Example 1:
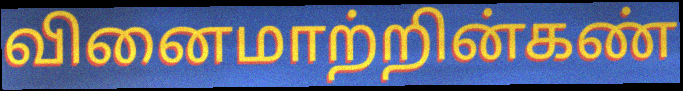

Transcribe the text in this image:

வினைமாற்றின்கண்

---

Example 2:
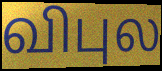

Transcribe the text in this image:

விபுல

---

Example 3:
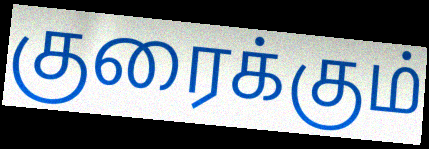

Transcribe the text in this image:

குரைக்கும்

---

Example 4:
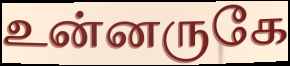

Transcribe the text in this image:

உன்னருகே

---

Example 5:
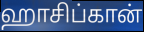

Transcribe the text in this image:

ஹாசிப்கான்